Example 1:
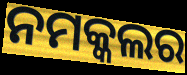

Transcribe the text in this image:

ନମକ୍କଲର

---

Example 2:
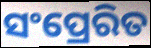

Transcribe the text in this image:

ସଂପ୍ରେରିତ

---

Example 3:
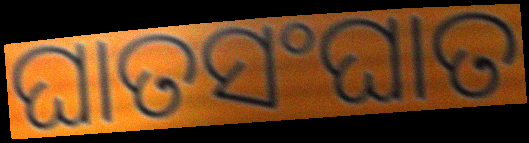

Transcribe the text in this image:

ଘାତସଂଘାତ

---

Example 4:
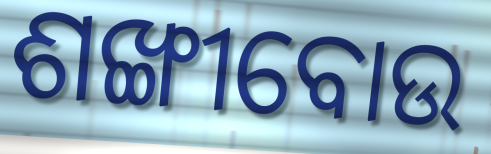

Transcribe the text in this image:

ଶଙ୍ଖୀବୋଉ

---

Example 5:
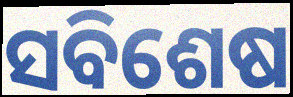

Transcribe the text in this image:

ସବିଶେଷ